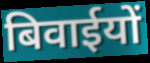
बिवाईयों